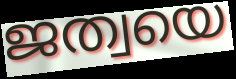
ജത്വയെ